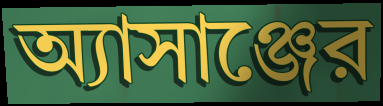
অ্যাসাঞ্জের